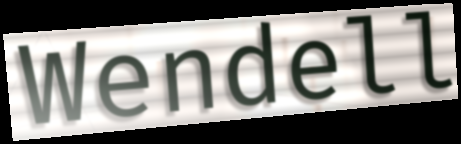
Wendell